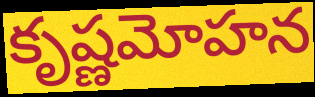
కృష్ణమోహన